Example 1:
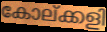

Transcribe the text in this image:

കോല്ക്കളി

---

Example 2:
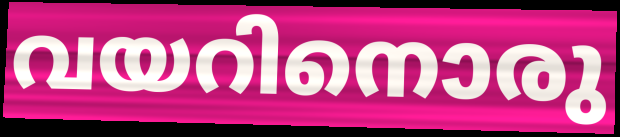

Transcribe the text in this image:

വയറിനൊരു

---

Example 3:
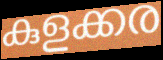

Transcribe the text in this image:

കുളക്കര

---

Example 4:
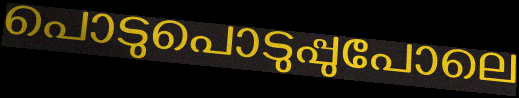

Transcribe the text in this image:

പൊടുപൊടുപ്പുപോലെ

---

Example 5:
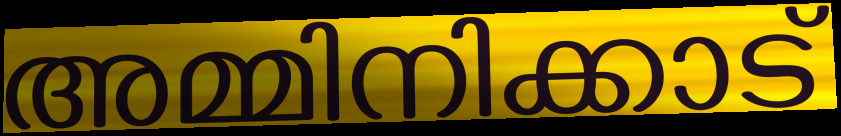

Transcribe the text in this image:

അമ്മിനിക്കാട്